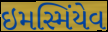
ઇમસ્મિંયેવ